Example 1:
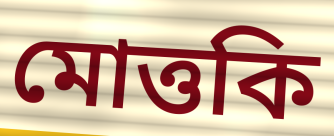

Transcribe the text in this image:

মোত্তকি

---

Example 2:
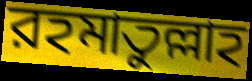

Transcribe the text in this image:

রহমাতুল্লাহ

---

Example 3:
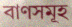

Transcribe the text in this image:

বাণসমূহ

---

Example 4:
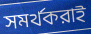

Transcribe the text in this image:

সমর্থকরাই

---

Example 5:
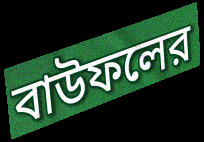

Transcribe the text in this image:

বাউফলের